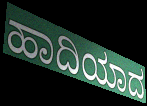
ಹಾದಿಯಾದ